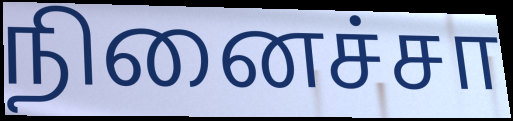
நினைச்சா